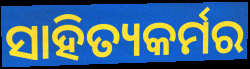
ସାହିତ୍ୟକର୍ମର